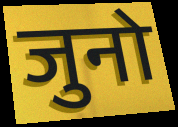
जुनो